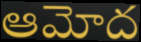
ఆమోద